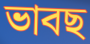
ভাবছ